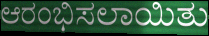
ಆರಂಭಿಸಲಾಯಿತು